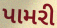
પામરી